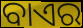
ବାଏର